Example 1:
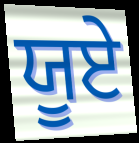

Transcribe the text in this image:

ਯੂਏ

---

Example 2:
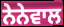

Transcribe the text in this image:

ਨੇਨੇਵਾਲ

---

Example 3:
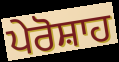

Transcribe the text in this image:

ਪੇਰੋਸ਼ਾਹ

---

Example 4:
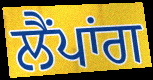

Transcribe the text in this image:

ਲੈਂਪਾਂਗ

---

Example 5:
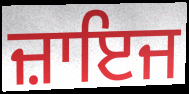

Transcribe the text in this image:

ਜ਼ਾਇਜ